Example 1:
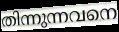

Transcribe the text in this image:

തിന്നുന്നവനെ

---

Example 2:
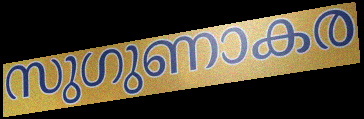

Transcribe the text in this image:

സുഗുണാകര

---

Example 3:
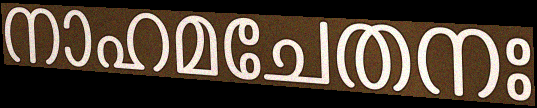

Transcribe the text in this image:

നാഹമചേതനഃ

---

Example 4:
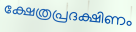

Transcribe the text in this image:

ക്ഷേത്രപ്രദക്ഷിണം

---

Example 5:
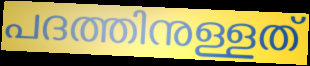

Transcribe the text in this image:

പദത്തിനുള്ളത്